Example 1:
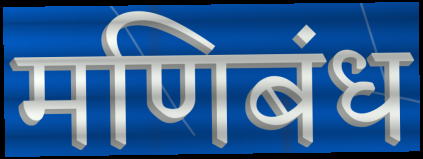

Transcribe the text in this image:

मणिबंध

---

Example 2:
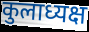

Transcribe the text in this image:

कुलाध्यक्ष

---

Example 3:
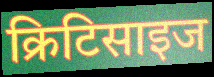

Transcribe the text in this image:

क्रिटिसाइज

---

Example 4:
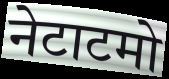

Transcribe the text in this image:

नेटाटमो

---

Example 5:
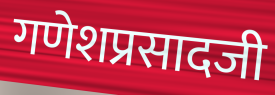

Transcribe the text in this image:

गणेशप्रसादजी